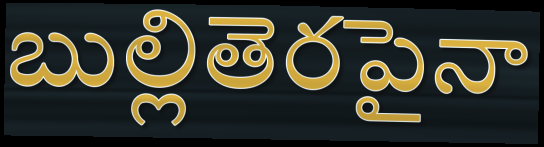
బుల్లితెరపైనా